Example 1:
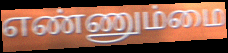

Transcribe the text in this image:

எண்ணும்மை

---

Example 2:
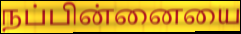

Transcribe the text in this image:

நப்பின்னையை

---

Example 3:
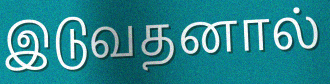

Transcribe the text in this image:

இடுவதனால்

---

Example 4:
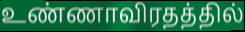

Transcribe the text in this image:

உண்ணாவிரதத்தில்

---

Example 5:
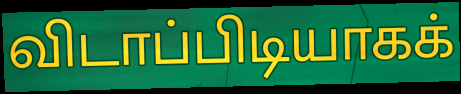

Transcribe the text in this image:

விடாப்பிடியாகக்